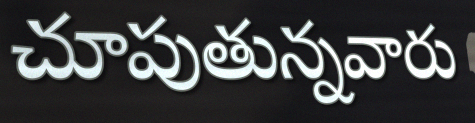
చూపుతున్నవారు